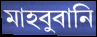
মাহবুবানি